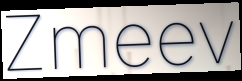
Zmeev